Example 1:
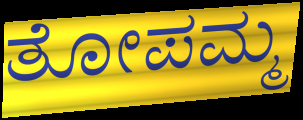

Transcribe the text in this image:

ತೋಪಮ್ಮ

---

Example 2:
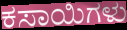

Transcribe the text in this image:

ಕಸಾಯಿಗಳು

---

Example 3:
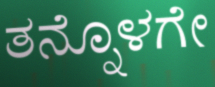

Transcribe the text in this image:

ತನ್ನೊಳಗೇ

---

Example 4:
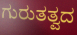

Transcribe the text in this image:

ಗುರುತತ್ವದ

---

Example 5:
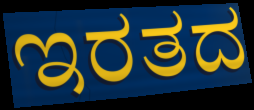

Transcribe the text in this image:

ಇರತದ